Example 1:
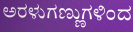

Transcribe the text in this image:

ಅರಳುಗಣ್ಣುಗಳಿಂದ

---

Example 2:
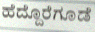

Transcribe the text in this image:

ಹೆದ್ದೊರೆಗೂಡೆ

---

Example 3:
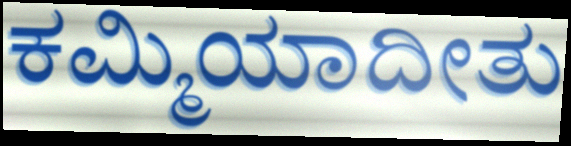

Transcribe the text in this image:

ಕಮ್ಮಿಯಾದೀತು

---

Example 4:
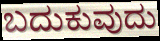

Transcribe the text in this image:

ಬದುಕುವುದು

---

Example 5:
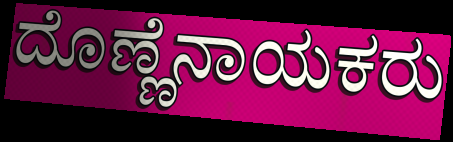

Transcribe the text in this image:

ದೊಣ್ಣೆನಾಯಕರು